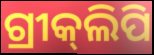
ଗ୍ରୀକ୍‌ଲିପି